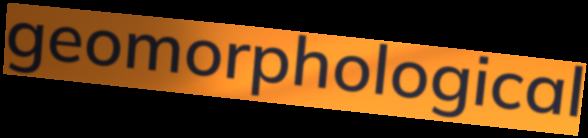
geomorphological